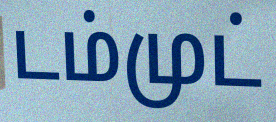
டம்முட்